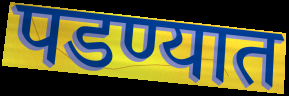
पडण्यात